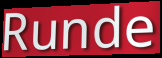
Runde